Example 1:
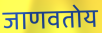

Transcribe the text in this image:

जाणवतोय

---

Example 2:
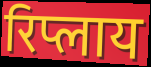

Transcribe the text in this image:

रिप्लाय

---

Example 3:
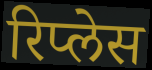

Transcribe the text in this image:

रिप्लेस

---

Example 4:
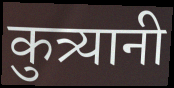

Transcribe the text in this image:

कुत्र्यानी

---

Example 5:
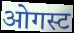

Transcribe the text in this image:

ओगस्ट